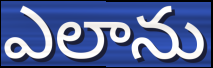
ఎలాను